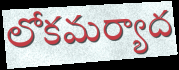
లోకమర్యాద